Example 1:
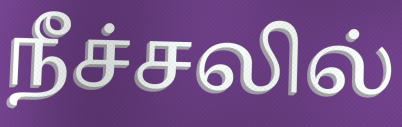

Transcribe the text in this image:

நீச்சலில்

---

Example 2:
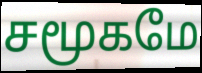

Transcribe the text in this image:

சமூகமே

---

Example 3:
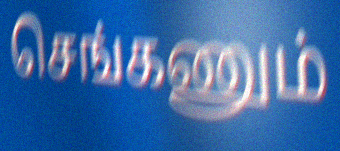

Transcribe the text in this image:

செங்கணும்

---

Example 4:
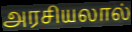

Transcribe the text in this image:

அரசியலால்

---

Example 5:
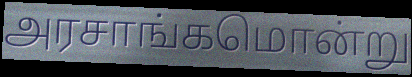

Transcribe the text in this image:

அரசாங்கமொன்று